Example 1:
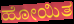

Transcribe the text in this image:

ಹೋಯಿತ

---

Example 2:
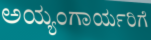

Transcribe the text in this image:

ಅಯ್ಯಂಗಾರ್ಯರಿಗೆ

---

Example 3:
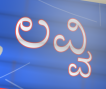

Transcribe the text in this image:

ಲವ್ವಿ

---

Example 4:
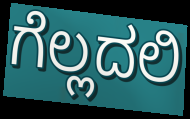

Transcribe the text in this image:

ಗೆಲ್ಲದಲಿ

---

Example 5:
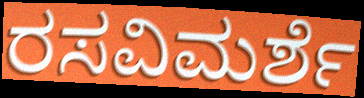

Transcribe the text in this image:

ರಸವಿಮರ್ಶೆ